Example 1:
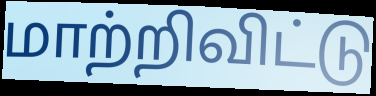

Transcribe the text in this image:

மாற்றிவிட்டு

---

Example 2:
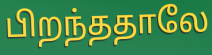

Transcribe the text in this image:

பிறந்ததாலே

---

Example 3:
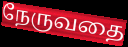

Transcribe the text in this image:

நேருவதை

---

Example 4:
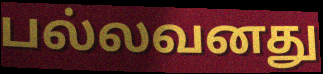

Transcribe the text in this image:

பல்லவனது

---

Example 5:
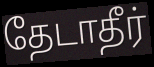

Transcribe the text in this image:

தேடாதீர்